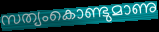
സത്യംകൊണ്ടുമാണു